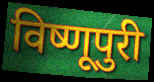
विष्णूपुरी